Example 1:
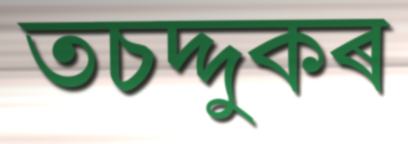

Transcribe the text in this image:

তচদ্দুকৰ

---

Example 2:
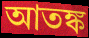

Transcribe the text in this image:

আতঙ্ক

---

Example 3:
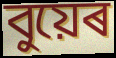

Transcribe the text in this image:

বুয়েৰ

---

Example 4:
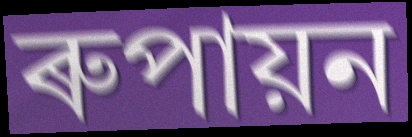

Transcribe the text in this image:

ৰুপায়ন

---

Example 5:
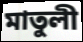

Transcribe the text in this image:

মাতুলী